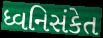
ધ્વનિસંકેત